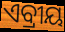
ଏବ୍ରୀୟ